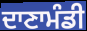
ਦਾਣਾਮੰਡੀ